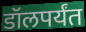
डॉलपर्यंत